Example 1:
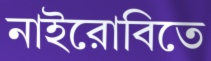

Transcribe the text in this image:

নাইরোবিতে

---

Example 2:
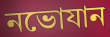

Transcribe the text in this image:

নভোযান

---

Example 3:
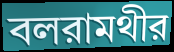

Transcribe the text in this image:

বলরামথীর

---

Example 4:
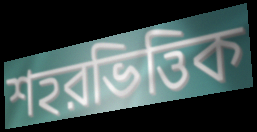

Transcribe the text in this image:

শহরভিত্তিক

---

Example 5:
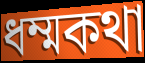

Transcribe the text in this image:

ধম্মকথা